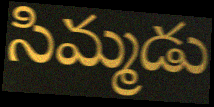
సిమ్మడు